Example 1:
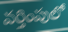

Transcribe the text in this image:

వర్తింపులో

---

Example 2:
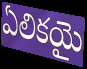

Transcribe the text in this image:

ఏలికయై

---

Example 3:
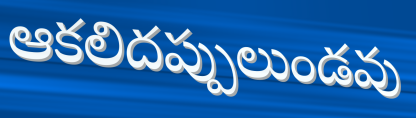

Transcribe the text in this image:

ఆకలిదప్పులుండవు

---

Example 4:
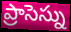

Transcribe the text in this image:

ప్రాసెస్ను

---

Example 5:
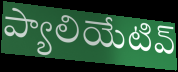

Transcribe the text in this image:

ప్యాలియేటివ్